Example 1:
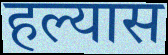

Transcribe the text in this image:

हल्यास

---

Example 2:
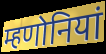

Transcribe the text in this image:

म्हणोनियां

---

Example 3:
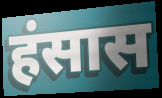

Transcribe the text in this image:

हंसास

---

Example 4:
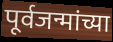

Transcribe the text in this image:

पूर्वजन्मांच्या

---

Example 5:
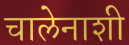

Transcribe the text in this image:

चालेनाशी